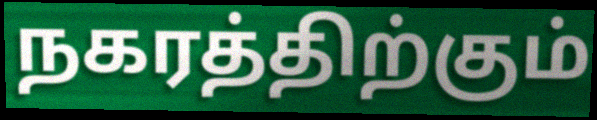
நகரத்திற்கும்